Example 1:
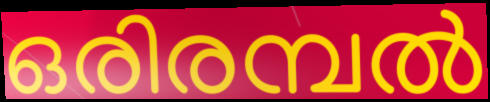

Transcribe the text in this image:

ഒരിരമ്പൽ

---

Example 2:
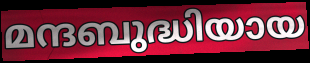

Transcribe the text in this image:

മന്ദബുദ്ധിയായ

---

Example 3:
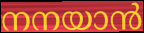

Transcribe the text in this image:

നനയാൻ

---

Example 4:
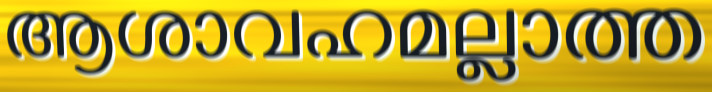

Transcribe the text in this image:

ആശാവഹമല്ലാത്ത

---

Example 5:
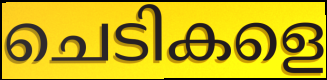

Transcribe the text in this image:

ചെടികളെ